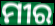
ମୀର